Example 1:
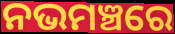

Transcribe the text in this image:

ନଭମଞ୍ଚରେ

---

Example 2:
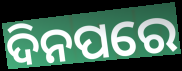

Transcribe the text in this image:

ଦିନପରେ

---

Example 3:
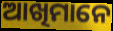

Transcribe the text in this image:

ଆଖିମାନେ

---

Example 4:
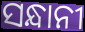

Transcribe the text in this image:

ସନ୍ଧାନୀ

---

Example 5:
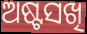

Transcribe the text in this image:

ଅଷ୍ଟସଖି